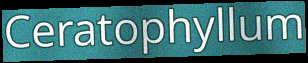
Ceratophyllum